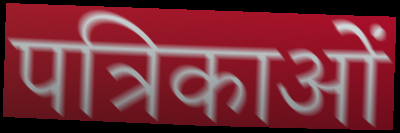
पत्रिकाओं